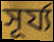
সূৰ্য্য